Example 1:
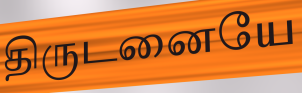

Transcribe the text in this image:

திருடனையே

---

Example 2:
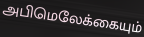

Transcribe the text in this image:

அபிமெலேக்கையும்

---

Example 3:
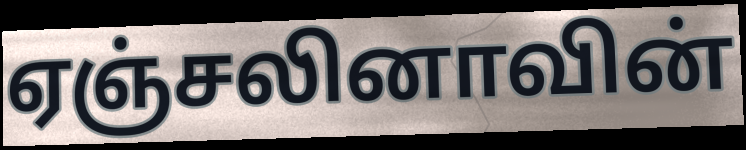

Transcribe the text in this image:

ஏஞ்சலினாவின்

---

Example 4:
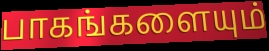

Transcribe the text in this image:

பாகங்களையும்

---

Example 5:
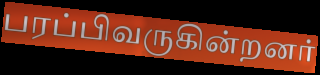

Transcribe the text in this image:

பரப்பிவருகின்றனர்